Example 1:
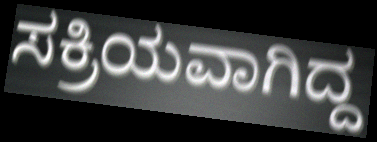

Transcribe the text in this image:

ಸಕ್ರಿಯವಾಗಿದ್ದ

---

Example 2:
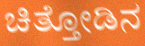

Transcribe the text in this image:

ಚಿತ್ತೋಡಿನ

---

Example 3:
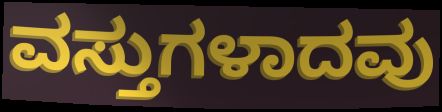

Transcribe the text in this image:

ವಸ್ತುಗಳಾದವು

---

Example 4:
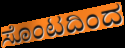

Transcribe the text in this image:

ಸೊಂಟದಿಂದ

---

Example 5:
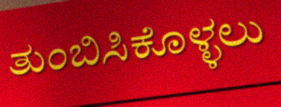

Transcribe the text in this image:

ತುಂಬಿಸಿಕೊಳ್ಳಲು